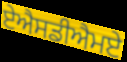
ਏਐਸਡੀਐਮਏ